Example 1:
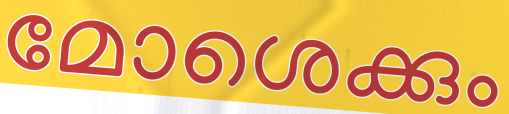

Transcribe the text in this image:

മോശെക്കും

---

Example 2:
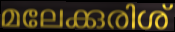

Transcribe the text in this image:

മലേക്കുരിശ്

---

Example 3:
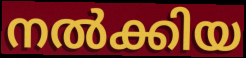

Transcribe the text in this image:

നൽക്കിയ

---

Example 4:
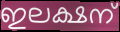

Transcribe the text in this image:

ഇലക്ഷന്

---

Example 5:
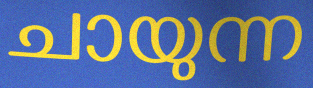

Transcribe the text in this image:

ചായുന്ന